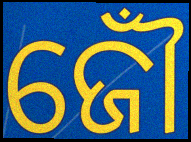
ଜୌଁ